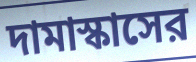
দামাস্কাসের